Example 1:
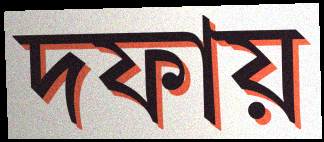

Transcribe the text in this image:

দফায়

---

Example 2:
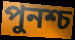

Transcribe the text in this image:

পুনশ্চ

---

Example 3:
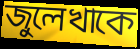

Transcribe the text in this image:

জুলেখাকে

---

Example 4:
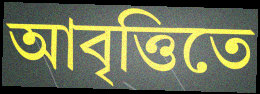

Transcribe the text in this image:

আবৃত্তিতে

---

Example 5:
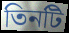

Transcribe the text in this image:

তিনটি